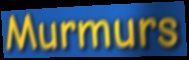
Murmurs